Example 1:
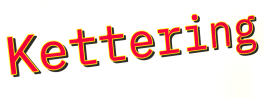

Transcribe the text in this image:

Kettering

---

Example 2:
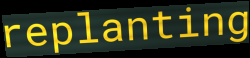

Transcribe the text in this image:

replanting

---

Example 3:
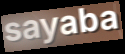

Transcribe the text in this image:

sayaba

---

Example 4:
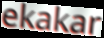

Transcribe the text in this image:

ekakar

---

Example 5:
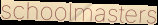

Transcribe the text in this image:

schoolmasters